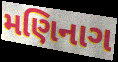
મણિનાગ